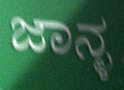
ಜಾನ್ಳ